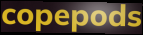
copepods